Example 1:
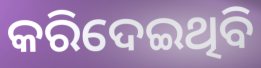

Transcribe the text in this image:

କରିଦେଇଥିବି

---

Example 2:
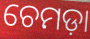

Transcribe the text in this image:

ଚେମଡ଼ା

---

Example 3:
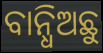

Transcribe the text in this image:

ବାନ୍ଧିଅଛୁ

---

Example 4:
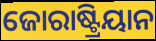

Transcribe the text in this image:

ଜୋରାଷ୍ଟ୍ରିୟାନ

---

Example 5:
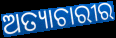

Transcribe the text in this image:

ଅତ୍ୟାଚାରୀର